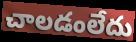
చాలడంలేదు